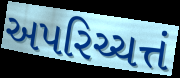
અપરિચ્ચત્તં